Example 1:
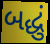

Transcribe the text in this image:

બદ્ધું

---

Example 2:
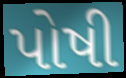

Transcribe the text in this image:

પોષી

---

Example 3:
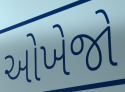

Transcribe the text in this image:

ઓખેજો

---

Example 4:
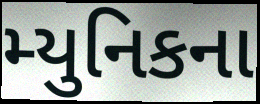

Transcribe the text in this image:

મ્યુનિકના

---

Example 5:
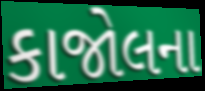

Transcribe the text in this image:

કાજોલના